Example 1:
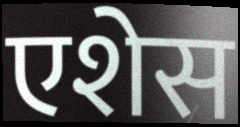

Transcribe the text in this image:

एशेस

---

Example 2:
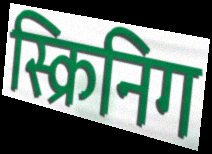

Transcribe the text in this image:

स्क्रिनिग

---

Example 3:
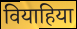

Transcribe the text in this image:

वियाहिया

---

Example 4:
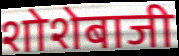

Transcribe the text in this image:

शोशेबाजी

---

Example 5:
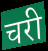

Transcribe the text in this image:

चरी